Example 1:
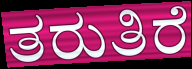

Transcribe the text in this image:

ತರುತಿರೆ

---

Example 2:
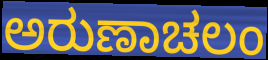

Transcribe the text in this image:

ಅರುಣಾಚಲಂ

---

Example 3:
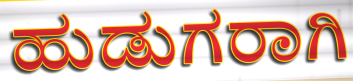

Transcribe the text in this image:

ಹುಡುಗರಾಗಿ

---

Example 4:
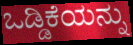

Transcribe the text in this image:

ಒಡ್ಡಿಕೆಯನ್ನು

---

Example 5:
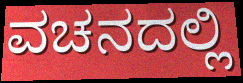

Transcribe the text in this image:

ವಚನದಲ್ಲಿ